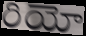
రియో